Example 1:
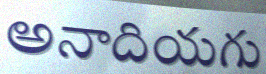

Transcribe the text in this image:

అనాదియగు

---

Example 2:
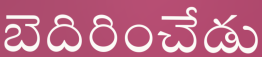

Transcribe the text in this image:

బెదిరించేడు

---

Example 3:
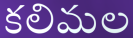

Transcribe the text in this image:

కలిమల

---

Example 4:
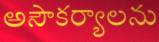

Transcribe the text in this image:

అసౌకర్యాలను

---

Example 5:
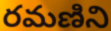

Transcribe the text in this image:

రమణిని